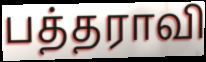
பத்தராவி